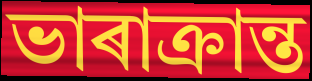
ভাৰাক্ৰান্ত